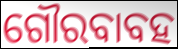
ଗୌରବାବହ